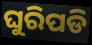
ଘୁରିପଡି